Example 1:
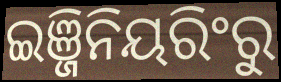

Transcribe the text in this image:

ଇଞ୍ଜିନିୟରିଂରୁ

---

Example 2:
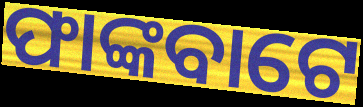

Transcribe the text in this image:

ଫାଙ୍କବାଟେ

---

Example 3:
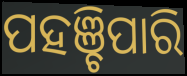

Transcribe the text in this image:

ପହଞ୍ଚିପାରି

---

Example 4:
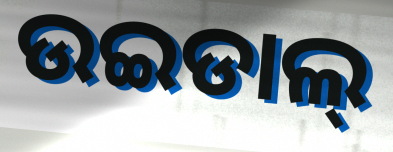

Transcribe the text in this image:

ଉଇଡାଲ୍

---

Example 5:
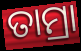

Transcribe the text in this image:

ତାମ୍ରା